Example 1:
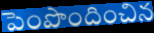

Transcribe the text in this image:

పెంపొందించిన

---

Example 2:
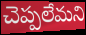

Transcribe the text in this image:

చెప్పలేమని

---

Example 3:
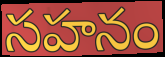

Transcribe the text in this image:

సహనం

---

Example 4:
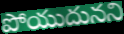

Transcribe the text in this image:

పోయుదునని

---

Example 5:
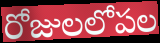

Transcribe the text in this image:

రోజులలోపల